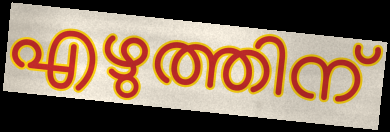
എഴുത്തിന്